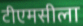
टीएमसीला